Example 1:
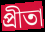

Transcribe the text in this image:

প্রীতা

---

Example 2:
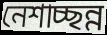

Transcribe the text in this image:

নেশাচ্ছন্ন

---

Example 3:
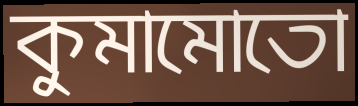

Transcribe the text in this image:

কুমামোতো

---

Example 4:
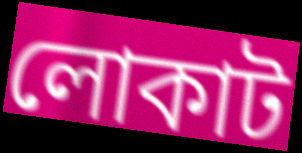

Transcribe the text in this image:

লোকাট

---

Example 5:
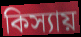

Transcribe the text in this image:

কিস্যায়